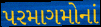
પરમાગમોનાં